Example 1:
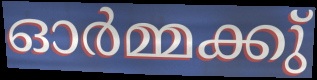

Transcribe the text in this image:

ഓർമ്മക്കു്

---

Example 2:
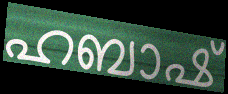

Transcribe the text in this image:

ഹബാഷ്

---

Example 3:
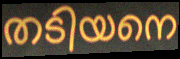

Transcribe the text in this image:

തടിയനെ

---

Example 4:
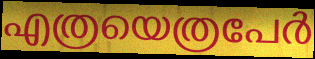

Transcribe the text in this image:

എത്രയെത്രപേർ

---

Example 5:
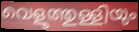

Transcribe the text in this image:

വെളുത്തുള്ളിയും